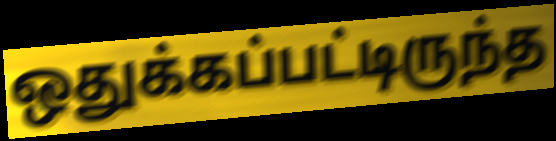
ஒதுக்கப்பட்டிருந்த